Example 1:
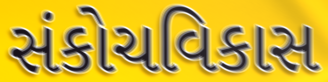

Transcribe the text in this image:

સંકોચવિકાસ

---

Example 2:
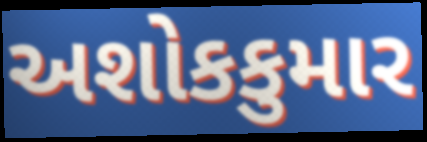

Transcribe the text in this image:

અશોકકુમાર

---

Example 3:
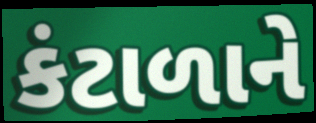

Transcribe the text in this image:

કંટાળાને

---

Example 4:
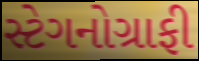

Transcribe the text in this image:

સ્ટેગનોગ્રાફી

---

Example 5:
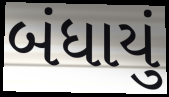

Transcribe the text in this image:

બંધાયું